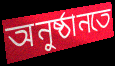
অনুষ্ঠানতে